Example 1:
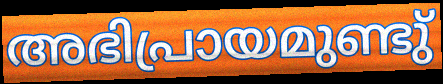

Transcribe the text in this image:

അഭിപ്രായമുണ്ടു്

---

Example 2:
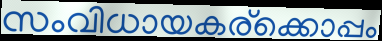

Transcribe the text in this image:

സംവിധായകര്ക്കൊപ്പം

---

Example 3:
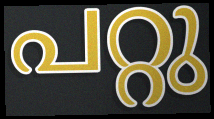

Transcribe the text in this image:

പറ്റു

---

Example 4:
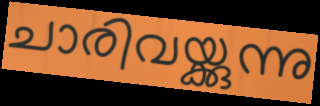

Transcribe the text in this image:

ചാരിവയ്ക്കുന്നു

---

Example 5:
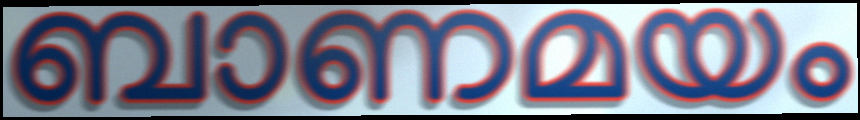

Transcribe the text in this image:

ബാണമയം